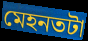
মেহনতটা